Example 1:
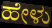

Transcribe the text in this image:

ಹೇಳು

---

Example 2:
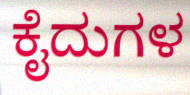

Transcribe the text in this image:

ಕೈದುಗಳ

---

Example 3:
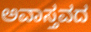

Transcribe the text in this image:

ಅವಾಸ್ತವದ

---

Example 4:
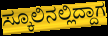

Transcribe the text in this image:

ಸ್ಕೂಲಿನಲ್ಲಿದ್ದಾಗ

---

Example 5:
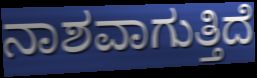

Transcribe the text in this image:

ನಾಶವಾಗುತ್ತಿದೆ